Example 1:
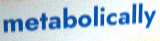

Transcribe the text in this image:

metabolically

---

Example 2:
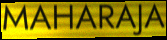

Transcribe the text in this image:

MAHARAJA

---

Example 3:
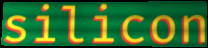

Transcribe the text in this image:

silicon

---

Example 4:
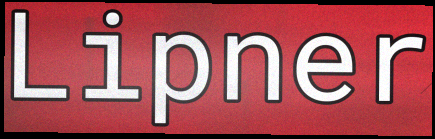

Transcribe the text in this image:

Lipner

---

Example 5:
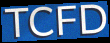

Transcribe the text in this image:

TCFD